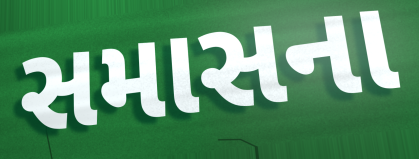
સમાસના